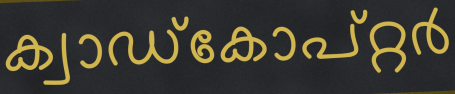
ക്വാഡ്കോപ്റ്റർ